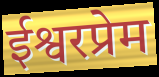
ईश्वरप्रेम